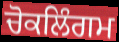
ਚੋਕਲਿੰਗਮ